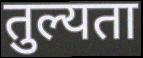
तुल्यता